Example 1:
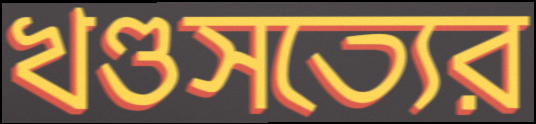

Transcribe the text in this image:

খণ্ডসত্যের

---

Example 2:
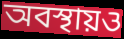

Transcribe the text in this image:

অবস্থায়ও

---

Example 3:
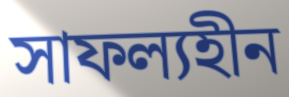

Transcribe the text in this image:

সাফল্যহীন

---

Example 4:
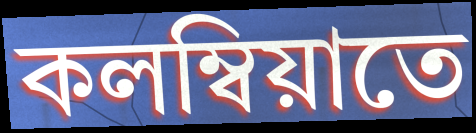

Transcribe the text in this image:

কলম্বিয়াতে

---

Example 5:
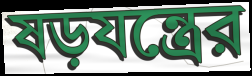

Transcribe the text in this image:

ষড়যন্ত্রের